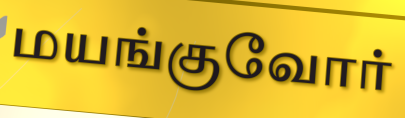
மயங்குவோர்